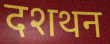
दशथन